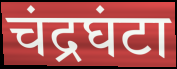
चंद्रघंटा